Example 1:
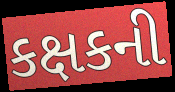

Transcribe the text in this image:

કક્ષકની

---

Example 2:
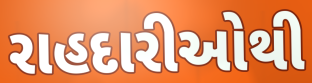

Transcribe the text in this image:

રાહદારીઓથી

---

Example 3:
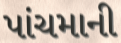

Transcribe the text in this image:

પાંચમાની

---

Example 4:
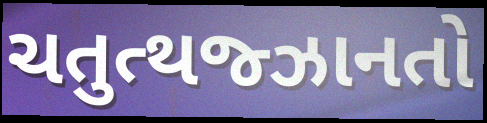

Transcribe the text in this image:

ચતુત્થજ્ઝાનતો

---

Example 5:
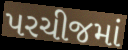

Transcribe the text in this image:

પરચીજમાં